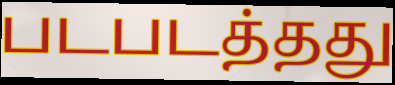
படபடத்தது